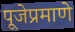
पूजेप्रमाणे